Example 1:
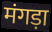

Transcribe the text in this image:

मंगड़ा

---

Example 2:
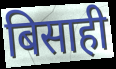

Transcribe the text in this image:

बिसाही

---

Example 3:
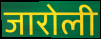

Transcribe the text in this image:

जारोली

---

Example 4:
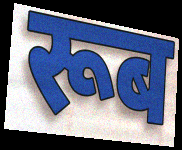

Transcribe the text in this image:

रूब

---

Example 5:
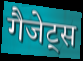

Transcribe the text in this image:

गैजेट्स